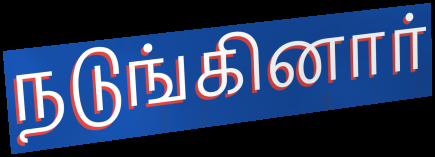
நடுங்கினார்